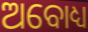
ଅବୋଧ୍ୟ